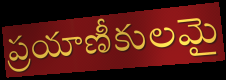
ప్రయాణీకులమై